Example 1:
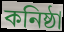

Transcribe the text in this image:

কনিষ্ঠা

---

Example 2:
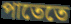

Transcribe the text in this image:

পাতেতে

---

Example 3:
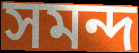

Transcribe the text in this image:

সমন্দ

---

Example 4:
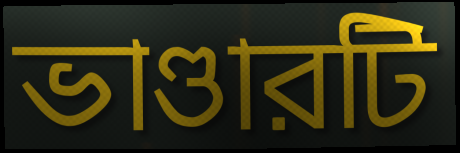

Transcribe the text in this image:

ভাণ্ডারটি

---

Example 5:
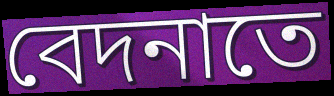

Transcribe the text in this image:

বেদনাতে